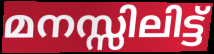
മനസ്സിലിട്ട്